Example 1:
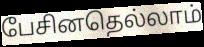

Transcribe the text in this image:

பேசினதெல்லாம்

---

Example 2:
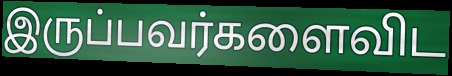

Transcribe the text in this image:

இருப்பவர்களைவிட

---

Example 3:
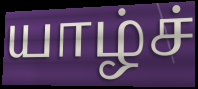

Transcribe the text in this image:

யாழ்ச்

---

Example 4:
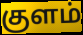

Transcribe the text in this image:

குளம்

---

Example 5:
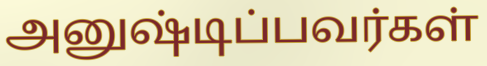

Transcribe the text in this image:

அனுஷ்டிப்பவர்கள்